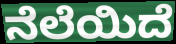
ನೆಲೆಯಿದೆ